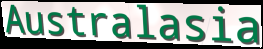
Australasia